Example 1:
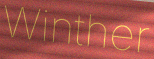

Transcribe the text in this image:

Winther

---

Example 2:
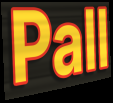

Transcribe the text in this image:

Pall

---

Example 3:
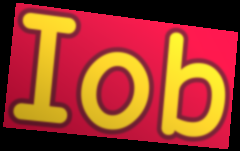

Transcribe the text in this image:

Iob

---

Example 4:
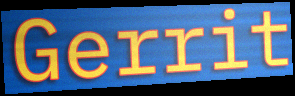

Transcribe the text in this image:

Gerrit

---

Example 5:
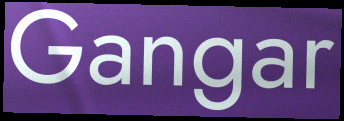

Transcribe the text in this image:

Gangar